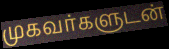
முகவர்களுடன்